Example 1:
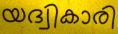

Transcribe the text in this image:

യദ്വികാരി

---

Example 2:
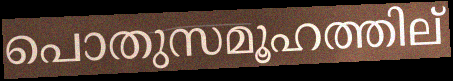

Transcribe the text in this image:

പൊതുസമൂഹത്തില്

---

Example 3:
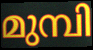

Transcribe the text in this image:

മുമ്പി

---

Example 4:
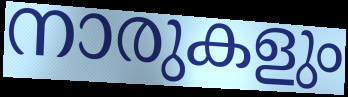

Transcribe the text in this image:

നാരുകളും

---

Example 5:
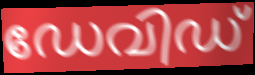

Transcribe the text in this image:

ഡേവിഡ്